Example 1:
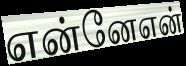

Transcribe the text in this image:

என்னேஎன்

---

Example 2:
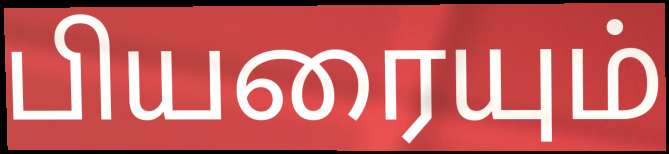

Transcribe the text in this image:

பியரையும்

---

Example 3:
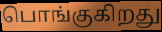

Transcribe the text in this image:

பொங்குகிறது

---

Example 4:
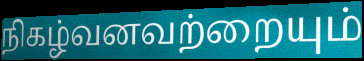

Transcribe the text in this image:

நிகழ்வனவற்றையும்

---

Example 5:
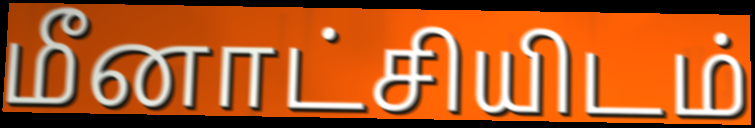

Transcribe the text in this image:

மீனாட்சியிடம்